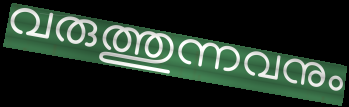
വരുത്തുന്നവനും